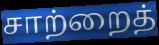
சாற்றைத்